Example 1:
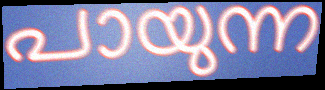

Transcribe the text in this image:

പായുന്ന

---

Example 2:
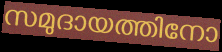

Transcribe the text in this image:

സമുദായത്തിനോ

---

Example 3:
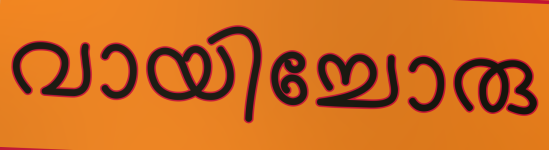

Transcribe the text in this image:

വായിച്ചോരു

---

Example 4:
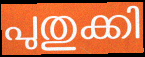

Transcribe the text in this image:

പുതുക്കി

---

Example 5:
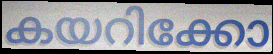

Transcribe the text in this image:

കയറിക്കോ